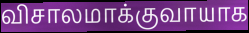
விசாலமாக்குவாயாக